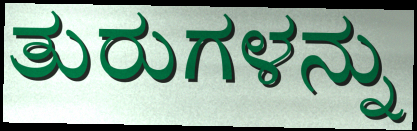
ತುರುಗಳನ್ನು